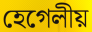
হেগেলীয়